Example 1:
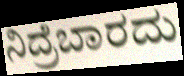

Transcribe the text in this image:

ನಿದ್ರೆಬಾರದು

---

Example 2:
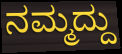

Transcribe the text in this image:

ನಮ್ಮದ್ದು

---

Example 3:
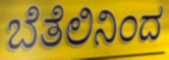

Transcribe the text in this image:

ಬೆತೆಲಿನಿಂದ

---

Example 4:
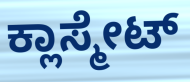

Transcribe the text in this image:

ಕ್ಲಾಸ್ಮೇಟ್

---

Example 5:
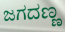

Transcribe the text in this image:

ಜಗದಣ್ಣ